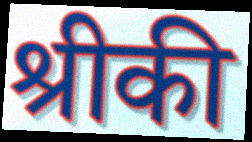
श्रीकी